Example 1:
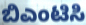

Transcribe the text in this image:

ಬಿಎಂಟಿಸಿ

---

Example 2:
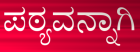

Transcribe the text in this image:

ಪಠ್ಯವನ್ನಾಗಿ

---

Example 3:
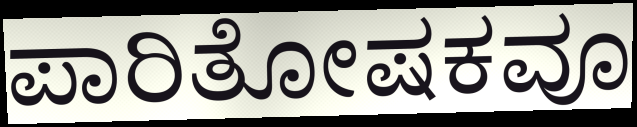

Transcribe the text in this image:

ಪಾರಿತೋಷಕವೂ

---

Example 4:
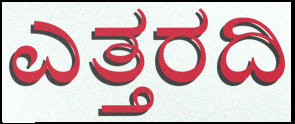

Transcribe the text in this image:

ಎತ್ತರದಿ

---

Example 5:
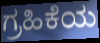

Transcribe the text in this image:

ಗ್ರಹಿಕೆಯ